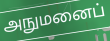
அநுமனைப்